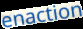
enaction